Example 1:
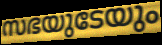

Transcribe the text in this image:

സഭയുടേയും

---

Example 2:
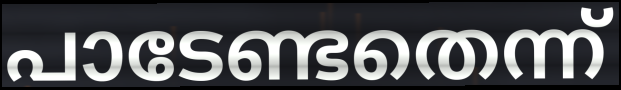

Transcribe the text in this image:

പാടേണ്ടതെന്ന്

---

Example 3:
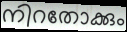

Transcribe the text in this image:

നിറതോക്കും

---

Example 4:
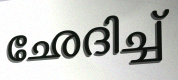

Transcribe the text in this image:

ഛേദിച്ച്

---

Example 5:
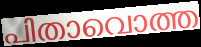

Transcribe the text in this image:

പിതാവൊത്ത